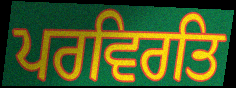
ਪਰਵਿਰਤਿ